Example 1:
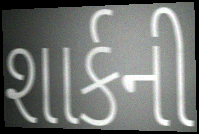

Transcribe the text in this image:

શાર્કની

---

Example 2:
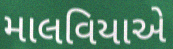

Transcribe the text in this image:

માલવિયાએ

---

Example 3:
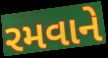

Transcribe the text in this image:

રમવાને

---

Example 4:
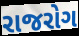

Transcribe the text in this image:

રાજરોગ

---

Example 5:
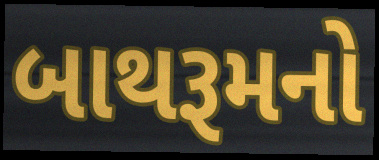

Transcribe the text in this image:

બાથરૂમનો